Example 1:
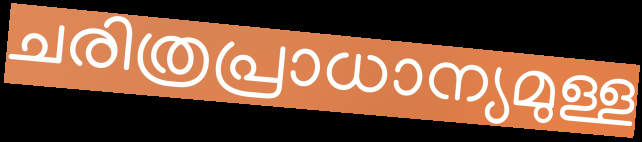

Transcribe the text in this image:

ചരിത്രപ്രാധാന്യമുള്ള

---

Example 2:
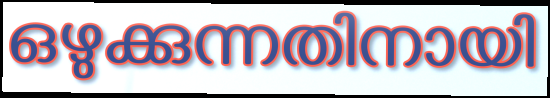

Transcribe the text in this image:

ഒഴുക്കുന്നതിനായി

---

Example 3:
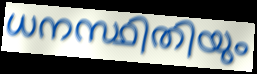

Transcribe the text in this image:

ധനസ്ഥിതിയും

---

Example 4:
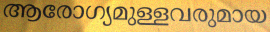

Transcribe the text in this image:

ആരോഗ്യമുള്ളവരുമായ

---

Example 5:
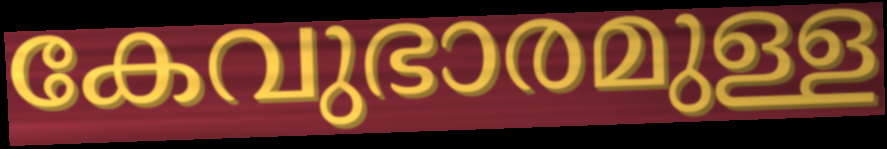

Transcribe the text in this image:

കേവുഭാരമുള്ള